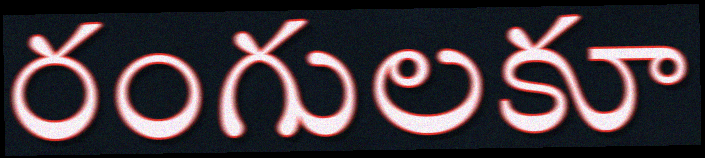
రంగులకూ